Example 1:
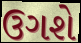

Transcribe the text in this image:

ઉગશે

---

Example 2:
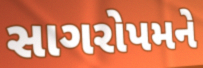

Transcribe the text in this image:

સાગરોપમને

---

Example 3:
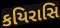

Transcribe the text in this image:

કયિરાસિ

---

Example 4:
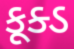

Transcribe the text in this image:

કૂક્ડ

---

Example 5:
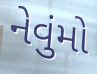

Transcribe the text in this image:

નેવુંમો